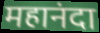
महानंदा